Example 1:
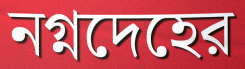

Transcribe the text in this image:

নগ্নদেহের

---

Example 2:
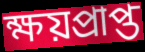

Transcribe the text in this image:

ক্ষয়প্রাপ্ত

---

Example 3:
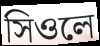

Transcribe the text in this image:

সিওলে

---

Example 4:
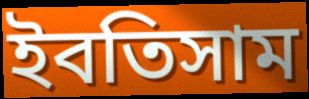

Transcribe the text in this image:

ইবতিসাম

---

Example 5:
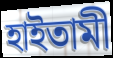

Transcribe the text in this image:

হাইতামী